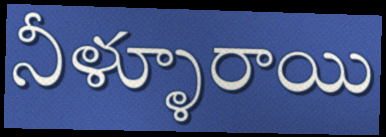
నీళ్ళూరాయి